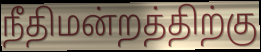
நீதிமன்றத்திற்கு